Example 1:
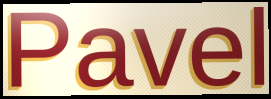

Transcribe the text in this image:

Pavel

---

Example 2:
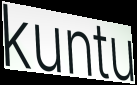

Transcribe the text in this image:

kuntu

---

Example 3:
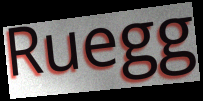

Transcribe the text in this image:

Ruegg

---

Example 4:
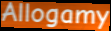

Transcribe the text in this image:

Allogamy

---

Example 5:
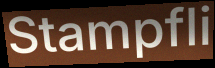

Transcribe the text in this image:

Stampfli